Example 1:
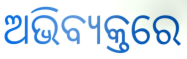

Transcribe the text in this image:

ଅଭିବ୍ୟକ୍ତରେ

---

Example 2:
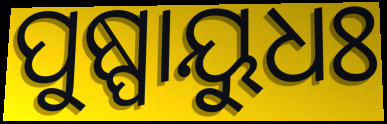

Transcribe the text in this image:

ପୁଷ୍ପାୟୁଧଃ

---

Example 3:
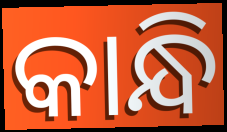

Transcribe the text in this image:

କାନ୍ଧି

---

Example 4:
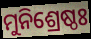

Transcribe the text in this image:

ମୁନିଶ୍ରେଷ୍ଠଃ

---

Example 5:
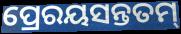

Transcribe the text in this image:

ପ୍ରେରୟସନ୍ତତମ୍